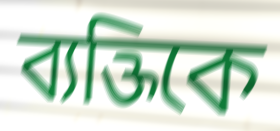
ব্যক্তিকে